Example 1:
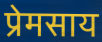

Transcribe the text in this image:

प्रेमसाय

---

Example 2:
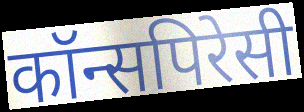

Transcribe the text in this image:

कॉन्सपिरेसी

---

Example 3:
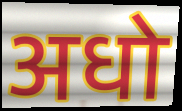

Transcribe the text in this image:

अधो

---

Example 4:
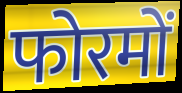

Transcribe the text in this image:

फोरमों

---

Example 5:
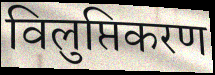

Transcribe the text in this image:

विलुप्तिकरण